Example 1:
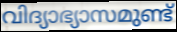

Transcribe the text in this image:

വിദ്യാഭ്യാസമുണ്ട്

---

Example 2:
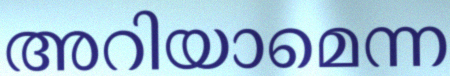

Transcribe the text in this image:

അറിയാമെന്ന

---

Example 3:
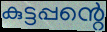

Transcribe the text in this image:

കുട്ടപ്പന്റെ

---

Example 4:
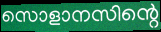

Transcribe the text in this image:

സൊളാനസിന്റെ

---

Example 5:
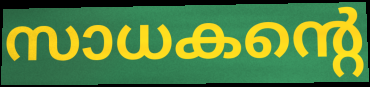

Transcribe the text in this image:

സാധകന്റെ